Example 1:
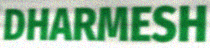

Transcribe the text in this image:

DHARMESH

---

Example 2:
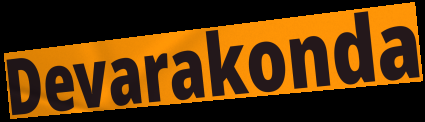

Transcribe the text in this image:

Devarakonda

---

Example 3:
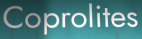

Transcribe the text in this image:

Coprolites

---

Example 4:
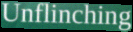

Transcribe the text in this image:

Unflinching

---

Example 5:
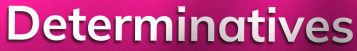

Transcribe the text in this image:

Determinatives